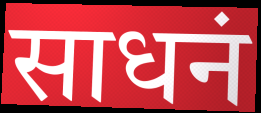
साधनं